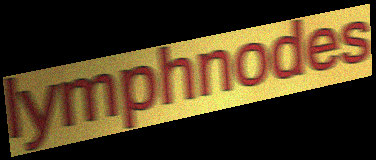
lymphnodes